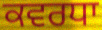
ਕਵਰਧਾ